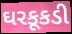
ઘરકૂકડી